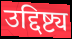
उद्दिष्ट्य